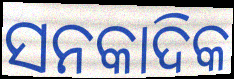
ସନକାଦିକ